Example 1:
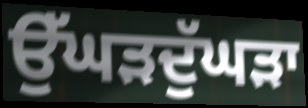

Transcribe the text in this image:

ਉੱਘੜਦੁੱਘੜਾ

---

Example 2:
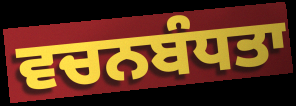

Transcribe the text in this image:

ਵਚਨਬੰਧਤਾ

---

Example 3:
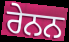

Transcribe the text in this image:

ਰੇਨਨ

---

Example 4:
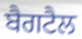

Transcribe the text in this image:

ਬੈਗਟੈਲ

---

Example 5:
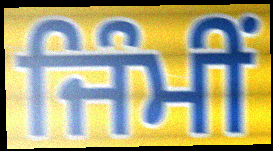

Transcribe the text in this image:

ਜਿੰਮੀਂ